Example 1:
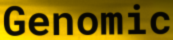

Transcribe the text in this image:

Genomic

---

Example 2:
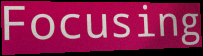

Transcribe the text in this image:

Focusing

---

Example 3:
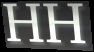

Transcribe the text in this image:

HH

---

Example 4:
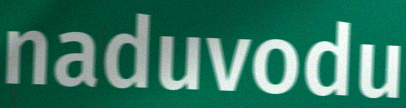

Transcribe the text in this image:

naduvodu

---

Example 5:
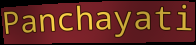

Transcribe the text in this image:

Panchayati